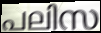
പലിസ